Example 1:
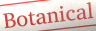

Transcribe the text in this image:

Botanical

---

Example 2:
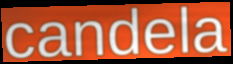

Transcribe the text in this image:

candela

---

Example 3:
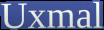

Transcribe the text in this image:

Uxmal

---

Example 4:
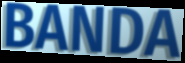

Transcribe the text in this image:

BANDA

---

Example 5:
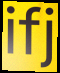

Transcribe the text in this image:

ifj